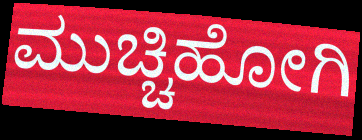
ಮುಚ್ಚಿಹೋಗಿ